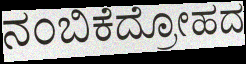
ನಂಬಿಕೆದ್ರೋಹದ